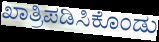
ಖಾತ್ರಿಪಡಿಸಿಕೊಂಡು